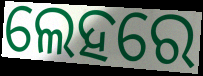
ଲେହରେ